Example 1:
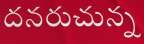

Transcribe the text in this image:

దనరుచున్న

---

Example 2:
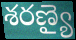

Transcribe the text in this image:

శరణ్యై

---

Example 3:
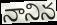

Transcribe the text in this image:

నానిన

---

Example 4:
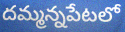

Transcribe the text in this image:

దమ్మన్నపేటలో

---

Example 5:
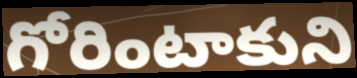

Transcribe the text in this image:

గోరింటాకుని